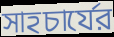
সাহচার্যের